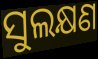
ସୁଲକ୍ଷଣ